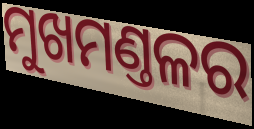
ମୁଖମଣ୍ତଳର